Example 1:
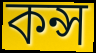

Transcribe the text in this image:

কন্স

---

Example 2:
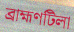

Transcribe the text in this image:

ব্রাহ্মণটিলা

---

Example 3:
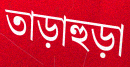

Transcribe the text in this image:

তাড়াহুড়া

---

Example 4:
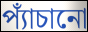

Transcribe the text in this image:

প্যাঁচানো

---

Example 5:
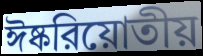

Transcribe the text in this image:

ঈষ্করিয়োতীয়